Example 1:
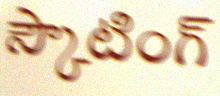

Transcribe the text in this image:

స్కౌటింగ్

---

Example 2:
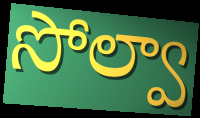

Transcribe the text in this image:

సోల్వా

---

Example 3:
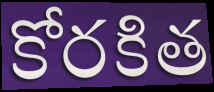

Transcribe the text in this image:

కోరకిత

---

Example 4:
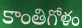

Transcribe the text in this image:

కాంతిగోళం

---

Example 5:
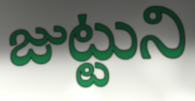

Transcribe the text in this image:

జుట్టుని